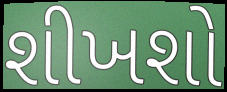
શીખશો